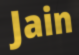
Jain